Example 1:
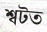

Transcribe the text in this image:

শ্বটত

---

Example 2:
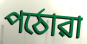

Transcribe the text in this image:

পঠোৱা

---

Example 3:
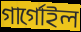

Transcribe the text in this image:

গাৰ্গোইল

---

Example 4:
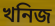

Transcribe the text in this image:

খনিজ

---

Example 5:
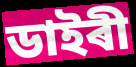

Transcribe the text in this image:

ডাইৰী